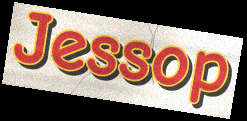
Jessop